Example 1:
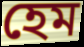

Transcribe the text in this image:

হেম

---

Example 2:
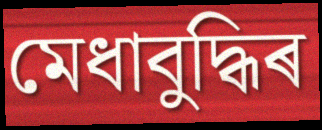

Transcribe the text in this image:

মেধাবুদ্ধিৰ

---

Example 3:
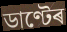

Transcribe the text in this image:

ডাণ্টেৰ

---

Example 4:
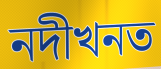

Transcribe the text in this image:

নদীখনত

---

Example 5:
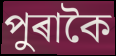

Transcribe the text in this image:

পুৰাকৈ